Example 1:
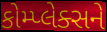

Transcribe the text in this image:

કોમ્પ્લેક્સને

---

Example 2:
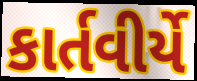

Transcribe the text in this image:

કાર્તવીર્યે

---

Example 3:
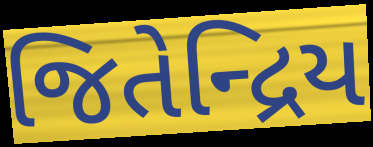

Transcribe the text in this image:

જિતેન્દ્રિય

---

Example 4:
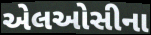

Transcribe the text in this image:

એલઓસીના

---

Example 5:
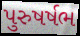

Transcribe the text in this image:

પુરુષર્ષભ